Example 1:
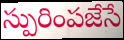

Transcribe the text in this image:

స్పురింపజేసే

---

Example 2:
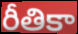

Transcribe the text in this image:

రీతికా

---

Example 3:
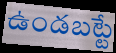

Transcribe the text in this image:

ఉండబట్టే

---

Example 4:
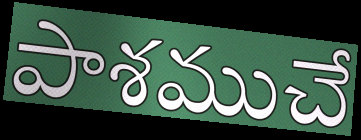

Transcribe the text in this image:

పాశముచే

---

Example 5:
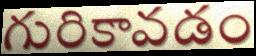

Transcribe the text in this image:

గురికావడం